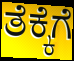
ತೆಕ್ಕೆಗೆ